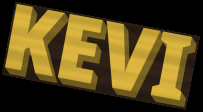
KEVI